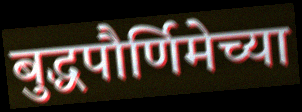
बुद्धपौर्णिमेच्या